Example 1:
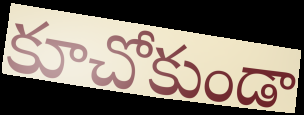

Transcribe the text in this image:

కూచోకుండా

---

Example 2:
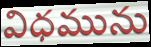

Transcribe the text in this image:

విధమును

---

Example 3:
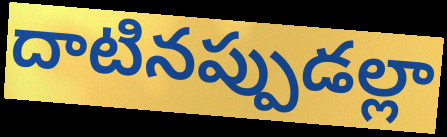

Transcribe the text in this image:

దాటినప్పుడల్లా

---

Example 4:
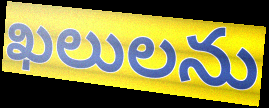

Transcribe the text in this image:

ఖలులను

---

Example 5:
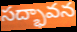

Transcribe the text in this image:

సద్భావన